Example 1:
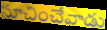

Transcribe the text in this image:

సూచించేవాడు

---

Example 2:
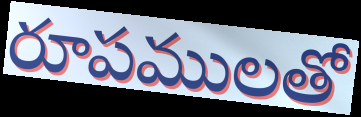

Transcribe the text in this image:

రూపములతో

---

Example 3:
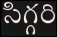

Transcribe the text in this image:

సిగ్గరి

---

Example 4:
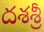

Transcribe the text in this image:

దశశ్రీ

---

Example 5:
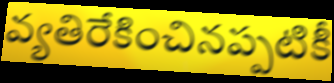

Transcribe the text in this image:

వ్యతిరేకించినప్పటికీ